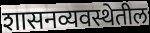
शासनव्यवस्थेतील